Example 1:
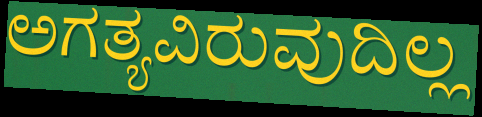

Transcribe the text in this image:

ಅಗತ್ಯವಿರುವುದಿಲ್ಲ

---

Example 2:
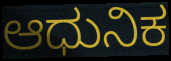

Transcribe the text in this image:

ಆಧುನಿಕ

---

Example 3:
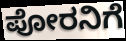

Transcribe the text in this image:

ಪೋರನಿಗೆ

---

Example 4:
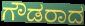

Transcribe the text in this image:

ಗೌಡರಾದ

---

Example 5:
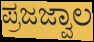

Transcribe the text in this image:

ಪ್ರಜಜ್ವಾಲ